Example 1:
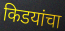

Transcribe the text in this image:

किडयांचा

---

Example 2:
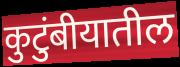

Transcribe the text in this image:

कुटुंबीयातील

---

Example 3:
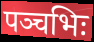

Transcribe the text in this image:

पञ्चभिः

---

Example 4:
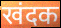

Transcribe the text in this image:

खंदक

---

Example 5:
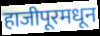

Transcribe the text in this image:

हाजीपूरमधून